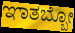
ಞಾತಬ್ಬೋ